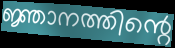
ജ്ഞാനത്തിന്റെ